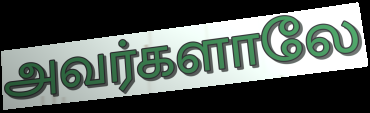
அவர்களாலே